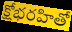
క్షోభరహితో